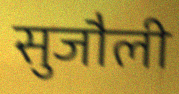
सुजौली